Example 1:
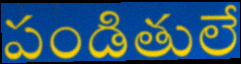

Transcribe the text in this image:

పండితులే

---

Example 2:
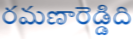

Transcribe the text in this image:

రమణారెడ్డిది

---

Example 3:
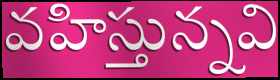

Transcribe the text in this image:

వహిస్తున్నవి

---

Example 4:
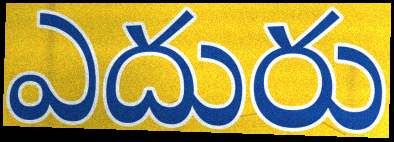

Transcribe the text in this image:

ఎదురు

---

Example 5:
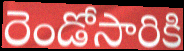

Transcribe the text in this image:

రెండోసారికి